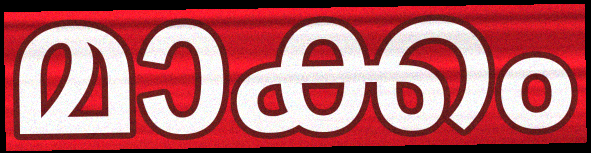
മാക്കം